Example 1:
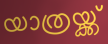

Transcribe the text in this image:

യാത്രയ്ക്ക്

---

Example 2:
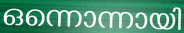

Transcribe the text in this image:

ഒന്നൊന്നായി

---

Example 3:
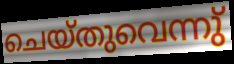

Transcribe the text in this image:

ചെയ്തുവെന്നു്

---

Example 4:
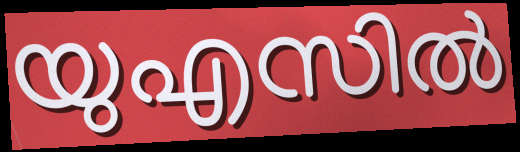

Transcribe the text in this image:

യുഎസിൽ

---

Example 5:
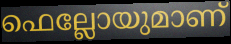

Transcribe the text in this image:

ഫെല്ലോയുമാണ്